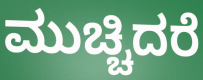
ಮುಚ್ಚಿದರೆ